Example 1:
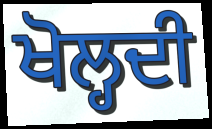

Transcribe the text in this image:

ਖੋਲ੍ਹਦੀ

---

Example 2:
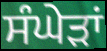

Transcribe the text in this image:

ਸੰਘੇੜਾਂ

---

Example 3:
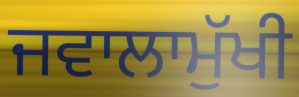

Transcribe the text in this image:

ਜਵਾਲਾਮੁੱਖੀ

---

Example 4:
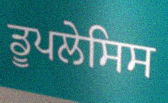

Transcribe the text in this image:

ਡੂਪਲੇਸਿਸ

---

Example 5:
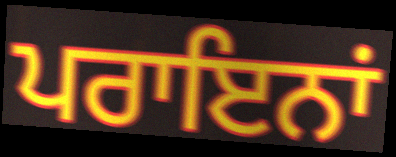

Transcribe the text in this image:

ਪਰਾਇਨਾਂ